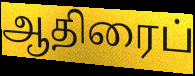
ஆதிரைப்